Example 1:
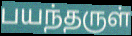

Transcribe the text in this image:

பயந்தருள்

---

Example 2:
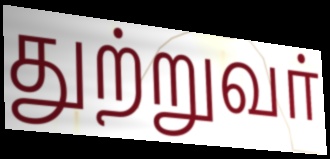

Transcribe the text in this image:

துற்றுவர்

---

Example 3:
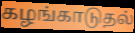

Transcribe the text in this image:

கழங்காடுதல்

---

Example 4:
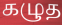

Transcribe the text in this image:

கழுத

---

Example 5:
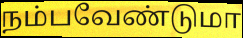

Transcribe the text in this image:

நம்பவேண்டுமா